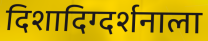
दिशादिग्दर्शनाला